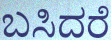
ಬಸಿದರೆ